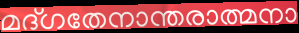
മദ്ഗതേനാന്തരാത്മനാ